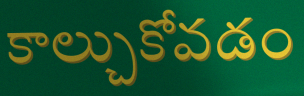
కాల్చుకోవడం